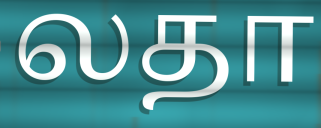
லதா